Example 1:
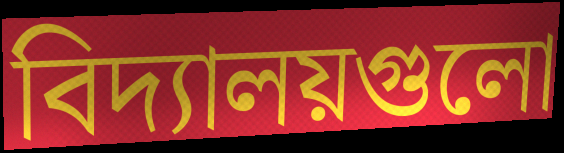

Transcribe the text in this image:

বিদ্যালয়গুলো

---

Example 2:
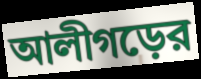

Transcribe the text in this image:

আলীগড়ের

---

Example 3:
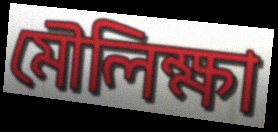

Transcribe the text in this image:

মৌলিক্ষা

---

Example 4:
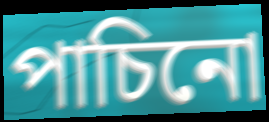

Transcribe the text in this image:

পাচিনো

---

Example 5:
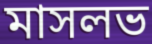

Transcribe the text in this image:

মাসলভ